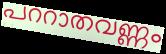
പററാതവണ്ണം